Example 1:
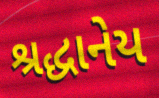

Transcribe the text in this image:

શ્રદ્ધાનેય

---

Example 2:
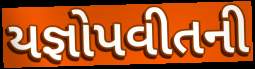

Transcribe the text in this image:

યજ્ઞોપવીતની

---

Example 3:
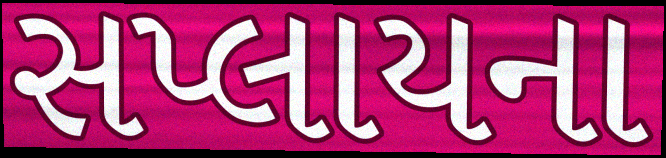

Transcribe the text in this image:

સપ્લાયના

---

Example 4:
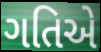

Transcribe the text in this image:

ગતિએ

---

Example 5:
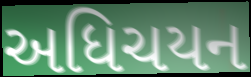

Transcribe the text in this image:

અધિચયન